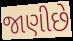
જાણીછે